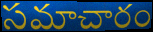
సమాచారం